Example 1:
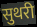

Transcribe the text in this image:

सुथरी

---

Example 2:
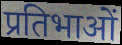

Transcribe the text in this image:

प्रतिभाओं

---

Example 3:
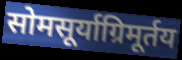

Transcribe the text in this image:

सोमसूर्याग्रिमूर्तय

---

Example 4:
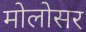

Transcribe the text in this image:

मोलोसर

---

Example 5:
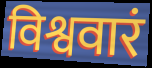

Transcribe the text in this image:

विश्ववारं